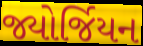
જ્યોર્જિયન